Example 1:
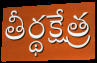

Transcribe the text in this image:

తీర్థక్షేత్ర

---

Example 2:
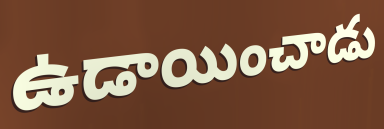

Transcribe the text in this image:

ఉడాయించాడు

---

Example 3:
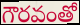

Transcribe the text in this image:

గౌరవంతో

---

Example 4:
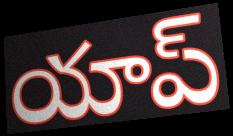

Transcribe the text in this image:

యాప్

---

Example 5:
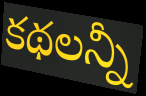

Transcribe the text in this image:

కథలన్నీ